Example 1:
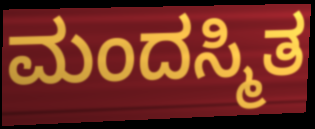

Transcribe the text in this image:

ಮಂದಸ್ಮಿತ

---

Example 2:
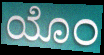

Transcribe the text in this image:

ಯೊಂ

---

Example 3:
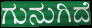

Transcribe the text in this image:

ಗುನುಗಿದೆ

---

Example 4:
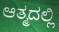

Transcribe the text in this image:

ಆತ್ಮದಲ್ಲಿ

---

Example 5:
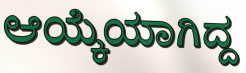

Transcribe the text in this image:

ಆಯ್ಕೆಯಾಗಿದ್ದ